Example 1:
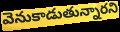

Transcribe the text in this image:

వెనుకాడుతున్నారని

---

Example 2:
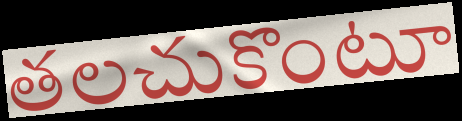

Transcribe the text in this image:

తలచుకొంటూ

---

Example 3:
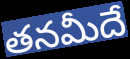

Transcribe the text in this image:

తనమీదే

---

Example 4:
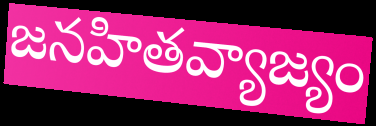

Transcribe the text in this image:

జనహితవ్యాజ్యం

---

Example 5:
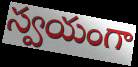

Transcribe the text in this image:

స్వయంగా